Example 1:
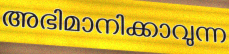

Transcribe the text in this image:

അഭിമാനിക്കാവുന്ന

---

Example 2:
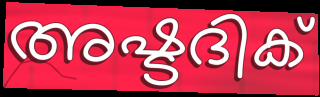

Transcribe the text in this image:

അഷ്ടദിക്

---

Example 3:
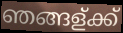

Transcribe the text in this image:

ഞങ്ങള്ക്ക്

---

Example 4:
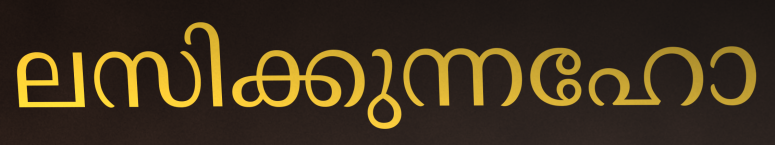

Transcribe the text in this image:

ലസിക്കുന്നഹോ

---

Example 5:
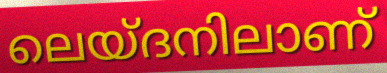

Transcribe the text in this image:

ലെയ്ദനിലാണ്